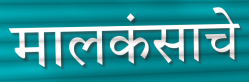
मालकंसाचे